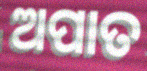
ଅପାତ